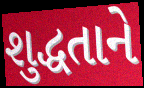
શુદ્ધતાને